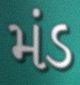
મંડ